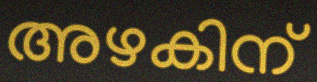
അഴകിന്